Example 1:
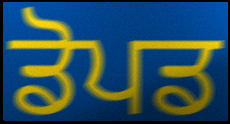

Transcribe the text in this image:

ਡੋਪਡ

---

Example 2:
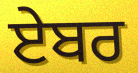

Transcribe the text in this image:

ਏਬਰ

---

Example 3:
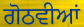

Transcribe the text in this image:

ਗੋਠਵੀਆਂ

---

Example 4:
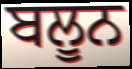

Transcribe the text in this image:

ਬਲੂਨ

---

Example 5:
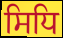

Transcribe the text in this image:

ਸਿਧਿ